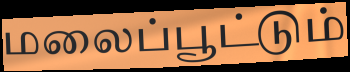
மலைப்பூட்டும்